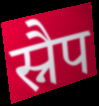
स्नैप